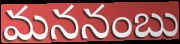
మననంబు